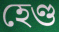
হেণ্ড